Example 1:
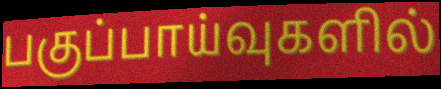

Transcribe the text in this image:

பகுப்பாய்வுகளில்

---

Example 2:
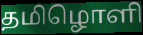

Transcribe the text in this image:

தமிழொளி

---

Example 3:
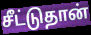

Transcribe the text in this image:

சீட்டுதான்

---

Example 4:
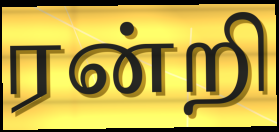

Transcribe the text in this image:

ரன்றி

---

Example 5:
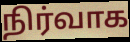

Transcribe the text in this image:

நிர்வாக